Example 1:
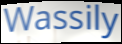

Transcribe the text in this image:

Wassily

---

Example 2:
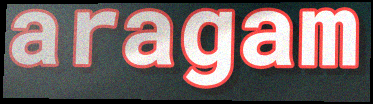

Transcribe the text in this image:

aragam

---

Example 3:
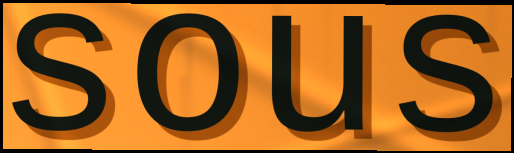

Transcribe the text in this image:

sous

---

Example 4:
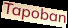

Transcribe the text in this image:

Tapoban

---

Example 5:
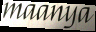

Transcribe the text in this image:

maanya